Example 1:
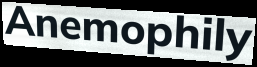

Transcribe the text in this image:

Anemophily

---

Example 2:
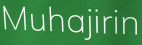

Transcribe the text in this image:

Muhajirin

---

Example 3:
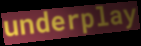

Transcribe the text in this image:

underplay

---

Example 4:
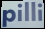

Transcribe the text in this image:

pilli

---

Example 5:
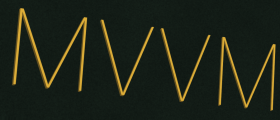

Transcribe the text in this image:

MVVM